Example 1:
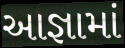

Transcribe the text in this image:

આજ્ઞામાં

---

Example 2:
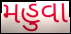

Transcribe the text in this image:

મહુવા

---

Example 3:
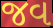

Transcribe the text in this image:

જવ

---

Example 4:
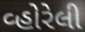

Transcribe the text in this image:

વ્હોરેલી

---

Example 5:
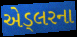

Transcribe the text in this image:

એડ્લરના